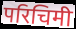
परिचिमी